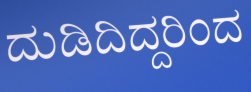
ದುಡಿದಿದ್ದರಿಂದ